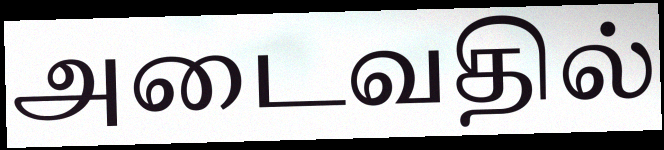
அடைவதில்